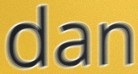
dan